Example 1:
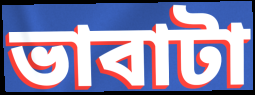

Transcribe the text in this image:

ভাবাটা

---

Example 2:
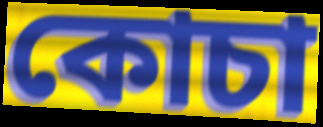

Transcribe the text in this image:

কোচা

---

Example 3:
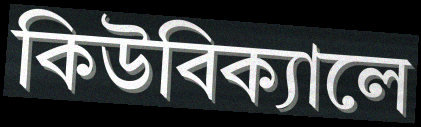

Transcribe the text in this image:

কিউবিক্যালে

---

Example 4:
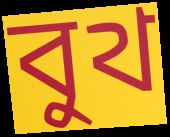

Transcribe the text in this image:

বুথ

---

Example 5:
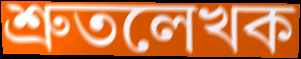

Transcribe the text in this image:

শ্রুতলেখক